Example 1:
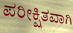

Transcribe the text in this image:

ಪರೀಕ್ಷಿತವಾಗಿ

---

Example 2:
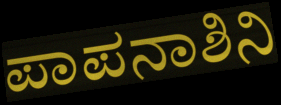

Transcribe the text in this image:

ಪಾಪನಾಶಿನಿ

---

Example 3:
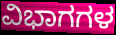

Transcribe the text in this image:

ವಿಭಾಗಗಳ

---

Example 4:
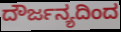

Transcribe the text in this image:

ದೌರ್ಜನ್ಯದಿಂದ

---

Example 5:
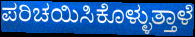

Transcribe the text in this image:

ಪರಿಚಯಿಸಿಕೊಳ್ಳುತ್ತಾಳೆ